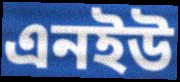
এনইউ